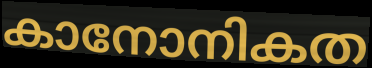
കാനോനികത